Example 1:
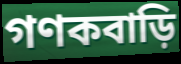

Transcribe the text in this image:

গণকবাড়ি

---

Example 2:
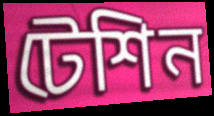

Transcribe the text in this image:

টেশিন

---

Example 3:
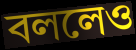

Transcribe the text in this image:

বললেও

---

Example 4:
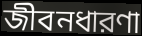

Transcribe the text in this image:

জীবনধারণা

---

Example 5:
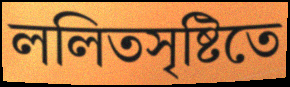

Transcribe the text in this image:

ললিতসৃষ্টিতে